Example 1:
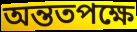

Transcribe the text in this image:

অন্ততপক্ষে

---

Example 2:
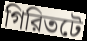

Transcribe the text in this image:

গিরিতটে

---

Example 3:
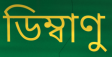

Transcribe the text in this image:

ডিম্বাণু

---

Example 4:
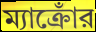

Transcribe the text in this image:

ম্যাক্রোঁর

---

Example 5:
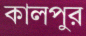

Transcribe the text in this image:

কালপুর